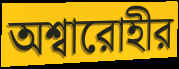
অশ্বারোহীর